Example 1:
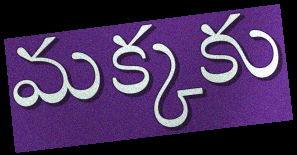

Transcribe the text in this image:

మక్కకు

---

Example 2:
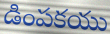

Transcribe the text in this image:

డింపకయు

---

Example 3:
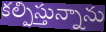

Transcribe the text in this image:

కల్పిస్తున్నాను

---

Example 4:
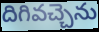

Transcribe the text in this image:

దిగివచ్చెను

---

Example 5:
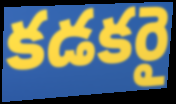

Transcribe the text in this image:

కడకరై